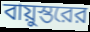
বায়ুস্তরের